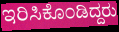
ಇರಿಸಿಕೊಂಡಿದ್ದರು